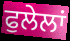
ਫੁਲੇਲਾਂ